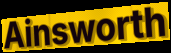
Ainsworth